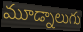
మూడ్నాలుగు